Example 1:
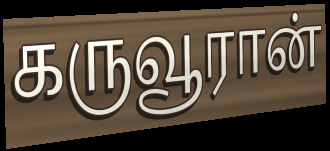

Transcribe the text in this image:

கருவூரான்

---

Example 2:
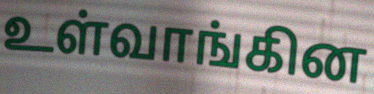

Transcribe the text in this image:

உள்வாங்கின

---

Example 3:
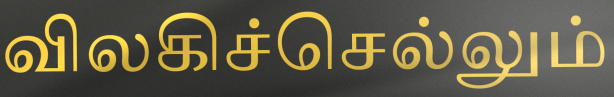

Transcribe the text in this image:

விலகிச்செல்லும்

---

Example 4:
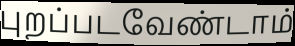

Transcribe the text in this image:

புறப்படவேண்டாம்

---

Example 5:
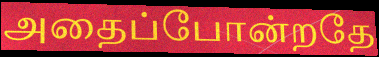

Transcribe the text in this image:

அதைப்போன்றதே